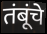
तंबूंचे